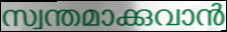
സ്വന്തമാക്കുവാൻ